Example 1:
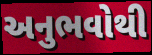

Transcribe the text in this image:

અનુભવોથી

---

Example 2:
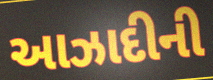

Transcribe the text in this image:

આઝાદીની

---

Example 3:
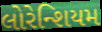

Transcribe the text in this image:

લોરેન્શિયમ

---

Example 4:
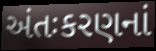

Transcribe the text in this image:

અંતઃકરણનાં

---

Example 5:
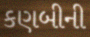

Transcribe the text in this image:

કણબીની